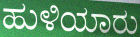
ಹುಳಿಯಾರು